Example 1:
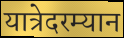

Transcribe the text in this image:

यात्रेदरम्यान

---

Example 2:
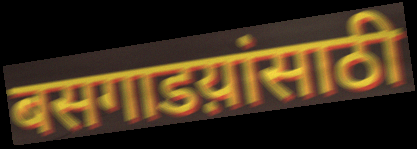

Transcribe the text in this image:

बसगाडय़ांसाठी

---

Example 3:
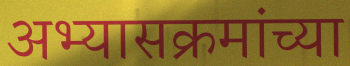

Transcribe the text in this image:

अभ्यासक्रमांच्या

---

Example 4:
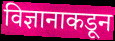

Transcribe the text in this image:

विज्ञानाकडून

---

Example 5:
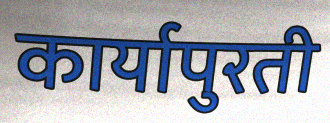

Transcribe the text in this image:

कार्यापुरती